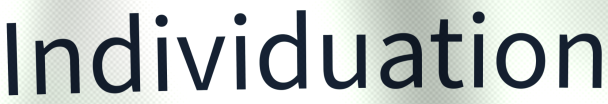
Individuation